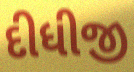
દીધીજી